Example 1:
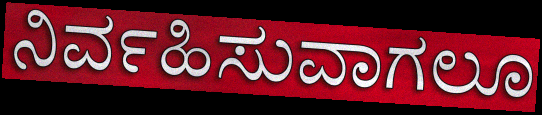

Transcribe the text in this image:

ನಿರ್ವಹಿಸುವಾಗಲೂ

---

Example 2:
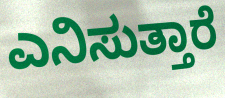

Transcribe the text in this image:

ಎನಿಸುತ್ತಾರೆ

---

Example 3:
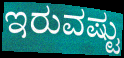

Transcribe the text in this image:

ಇರುವಷ್ಟು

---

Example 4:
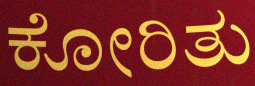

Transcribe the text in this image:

ಕೋರಿತು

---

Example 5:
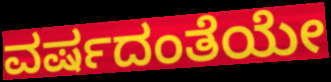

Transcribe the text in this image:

ವರ್ಷದಂತೆಯೇ